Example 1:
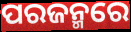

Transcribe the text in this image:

ପରଜନ୍ମରେ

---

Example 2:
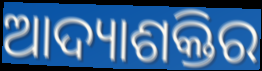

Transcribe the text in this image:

ଆଦ୍ୟାଶକ୍ତିର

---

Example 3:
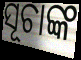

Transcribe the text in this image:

ସୂଚାଙ୍କ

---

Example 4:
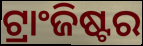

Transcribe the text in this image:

ଟ୍ରାଂଜିଷ୍ଟର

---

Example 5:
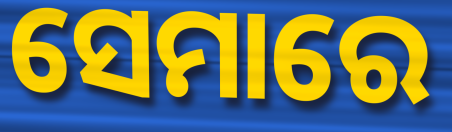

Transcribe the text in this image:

ସେମାରେ